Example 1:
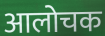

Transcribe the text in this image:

आलोचक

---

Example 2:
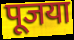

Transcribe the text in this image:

पूजया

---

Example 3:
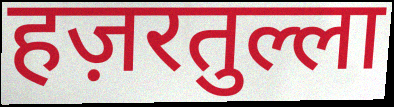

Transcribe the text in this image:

हज़रतुल्ला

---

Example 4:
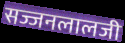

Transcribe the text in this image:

सज्जनलालजी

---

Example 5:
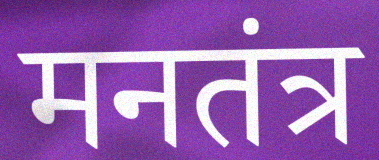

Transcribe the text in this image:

मनतंत्र